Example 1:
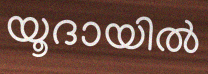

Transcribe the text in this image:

യൂദായിൽ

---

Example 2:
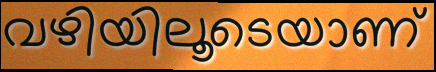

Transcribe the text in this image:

വഴിയിലൂടെയാണ്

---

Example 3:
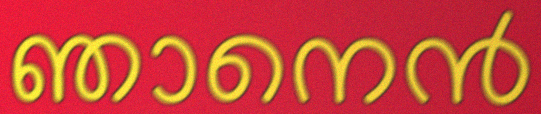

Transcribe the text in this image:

ഞാനെൻ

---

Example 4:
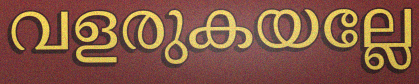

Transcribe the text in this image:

വളരുകയല്ലേ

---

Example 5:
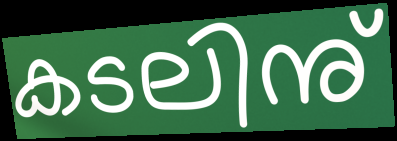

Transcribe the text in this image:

കടലിനു്